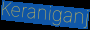
Keraniganj